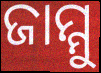
ଜାମ୍ମୁ